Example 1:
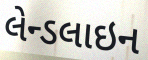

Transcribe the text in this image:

લેન્ડલાઇન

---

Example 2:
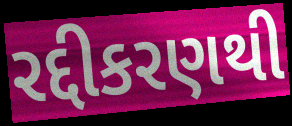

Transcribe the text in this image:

રદ્દીકરણથી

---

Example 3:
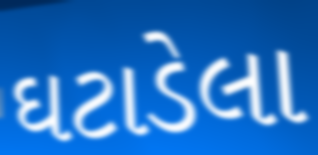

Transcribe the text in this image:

ઘટાડેલા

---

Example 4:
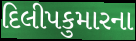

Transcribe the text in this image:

દિલીપકુમારના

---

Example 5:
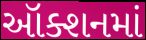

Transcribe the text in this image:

ઑક્શનમાં